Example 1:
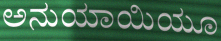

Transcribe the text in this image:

ಅನುಯಾಯಿಯೂ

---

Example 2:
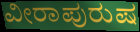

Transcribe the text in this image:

ವೀರಾಪುರುಷ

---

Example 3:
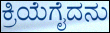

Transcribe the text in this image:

ಕ್ರಿಯೆಗೈದನು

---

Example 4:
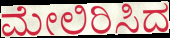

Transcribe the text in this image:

ಮೇಲಿರಿಸಿದ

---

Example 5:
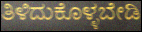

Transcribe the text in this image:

ತಿಳಿದುಕೊಳ್ಳಬೇಡಿ